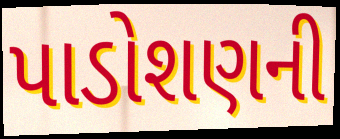
પાડોશણની